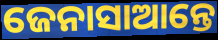
ଜେନାସାଆନ୍ତେ